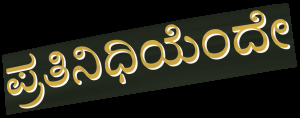
ಪ್ರತಿನಿಧಿಯೆಂದೇ